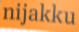
nijakku